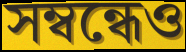
সম্বন্ধেও